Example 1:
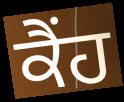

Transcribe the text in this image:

ਕੈਂਹ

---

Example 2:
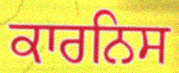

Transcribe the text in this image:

ਕਾਰਨਿਸ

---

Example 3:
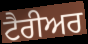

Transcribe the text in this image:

ਟੈਰੀਅਰ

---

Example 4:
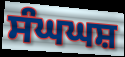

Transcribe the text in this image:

ਸੰਘਘਸ਼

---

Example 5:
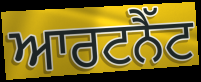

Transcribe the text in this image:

ਆਰਟਨੈੱਟ